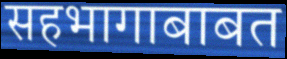
सहभागाबाबत